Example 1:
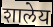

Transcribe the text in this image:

शालेय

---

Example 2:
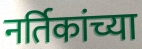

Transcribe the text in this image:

नर्तिकांच्या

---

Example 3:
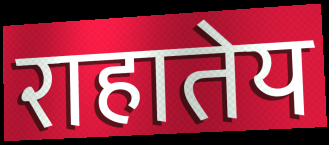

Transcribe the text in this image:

राहातेय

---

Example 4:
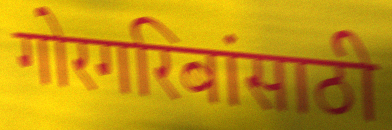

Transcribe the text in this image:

गोरगरिबांसाठी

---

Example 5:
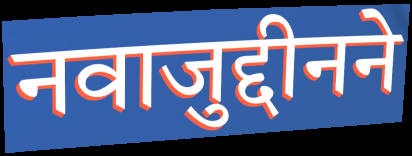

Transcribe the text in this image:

नवाजुद्दीनने